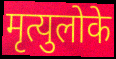
मृत्युलोके